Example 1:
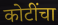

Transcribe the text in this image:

कोटींचा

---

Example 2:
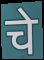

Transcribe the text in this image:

चे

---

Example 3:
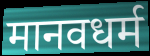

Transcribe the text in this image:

मानवधर्म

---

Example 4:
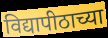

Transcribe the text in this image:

विद्यापीठाच्या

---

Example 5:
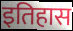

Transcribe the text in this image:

इतिहास